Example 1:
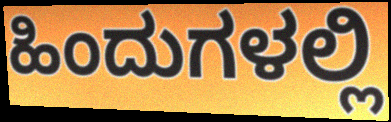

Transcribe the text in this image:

ಹಿಂದುಗಳಲ್ಲಿ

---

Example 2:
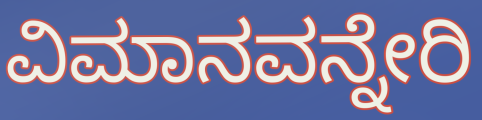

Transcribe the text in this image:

ವಿಮಾನವನ್ನೇರಿ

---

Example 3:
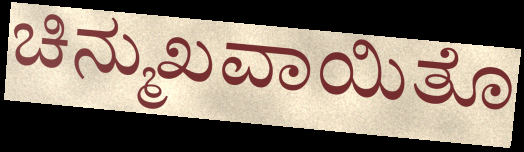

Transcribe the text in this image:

ಚಿನ್ಮುಖವಾಯಿತೊ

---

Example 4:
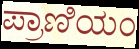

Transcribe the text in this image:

ಪ್ರಾಣಿಯಂ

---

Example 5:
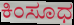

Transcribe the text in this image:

ಕಿಂಸೂಧ